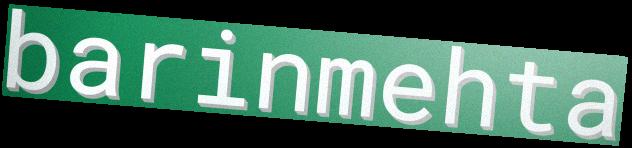
barinmehta